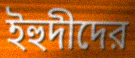
ইহুদীদের